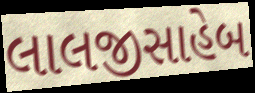
લાલજીસાહેબ